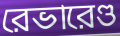
রেভারেণ্ড